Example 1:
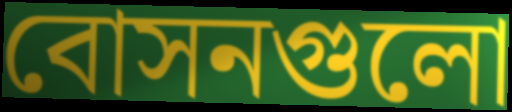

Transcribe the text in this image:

বোসনগুলো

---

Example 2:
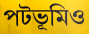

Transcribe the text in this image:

পটভূমিও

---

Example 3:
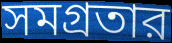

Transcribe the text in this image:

সমগ্রতার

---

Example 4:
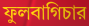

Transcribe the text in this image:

ফুলবাগিচার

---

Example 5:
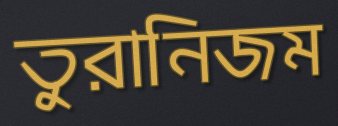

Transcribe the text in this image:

তুরানিজম